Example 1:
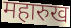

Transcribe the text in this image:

महारुख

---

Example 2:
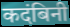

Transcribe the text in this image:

कदंबिनी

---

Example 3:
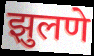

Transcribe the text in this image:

झुलणे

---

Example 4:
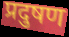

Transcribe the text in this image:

प्रदुषण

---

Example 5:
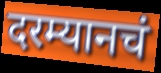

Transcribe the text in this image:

दरम्यानचं